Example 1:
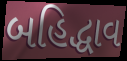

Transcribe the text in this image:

બહિદ્ધાવ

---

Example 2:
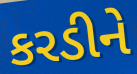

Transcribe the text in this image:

કરડીને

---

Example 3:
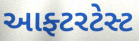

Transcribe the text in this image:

આફ્ટરટેસ્ટ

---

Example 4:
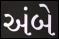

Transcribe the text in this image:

અંબે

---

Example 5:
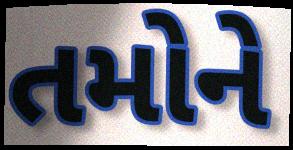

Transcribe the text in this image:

તમોને